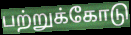
பற்றுக்கோடு